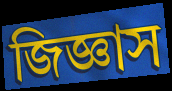
জিজ্ঞাস